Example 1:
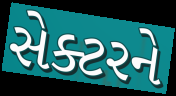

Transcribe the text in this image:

સેક્ટરને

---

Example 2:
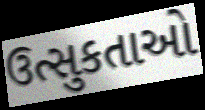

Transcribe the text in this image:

ઉત્સુકતાઓ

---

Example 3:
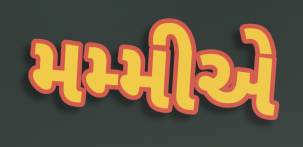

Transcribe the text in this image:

મમ્મીએ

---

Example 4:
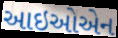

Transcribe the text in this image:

આઇઓએન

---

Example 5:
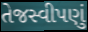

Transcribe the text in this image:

તેજસ્વીપણું